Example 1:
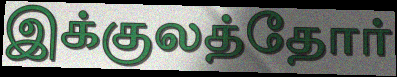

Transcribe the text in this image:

இக்குலத்தோர்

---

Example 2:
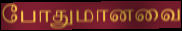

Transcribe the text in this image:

போதுமானவை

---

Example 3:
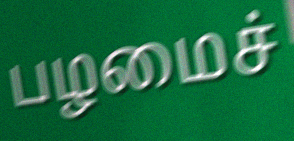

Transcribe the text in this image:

பழமைச்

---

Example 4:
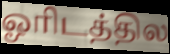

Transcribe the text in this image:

ஓரிடத்தில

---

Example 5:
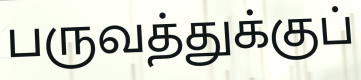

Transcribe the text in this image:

பருவத்துக்குப்